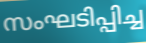
സംഘടിപ്പിച്ച